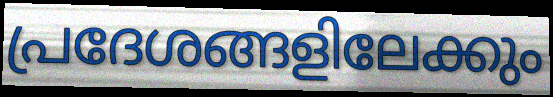
പ്രദേശങ്ങളിലേക്കും